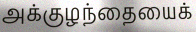
அக்குழந்தையைக்